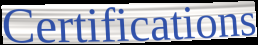
Certifications